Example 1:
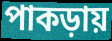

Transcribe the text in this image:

পাকড়ায়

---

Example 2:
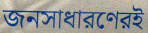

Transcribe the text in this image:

জনসাধারণেরই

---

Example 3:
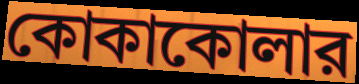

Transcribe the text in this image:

কোকাকোলার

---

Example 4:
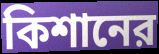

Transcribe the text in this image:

কিশানের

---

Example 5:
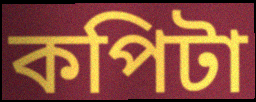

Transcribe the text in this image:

কপিটা